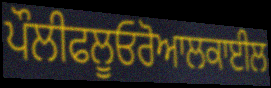
ਪੌਲੀਫਲੂਓਰੋਆਲਕਾਈਲ